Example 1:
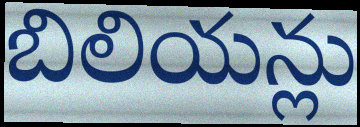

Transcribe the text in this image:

బిలియన్లు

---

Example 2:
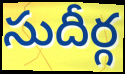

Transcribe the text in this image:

సుదీర్గ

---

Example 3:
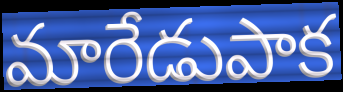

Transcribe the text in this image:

మారేడుపాక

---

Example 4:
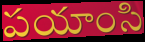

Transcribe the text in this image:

పయాంసి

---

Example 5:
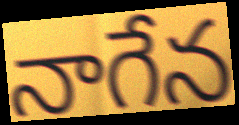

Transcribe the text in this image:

నాగేన